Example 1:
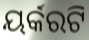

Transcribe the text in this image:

ୟର୍କରଟି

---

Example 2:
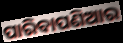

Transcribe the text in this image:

ପାରିବାପଣିଆର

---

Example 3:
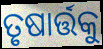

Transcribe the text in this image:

ତୃଷାର୍ତ୍ତକୁ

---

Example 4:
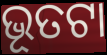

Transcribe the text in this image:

ଭୂତଟା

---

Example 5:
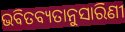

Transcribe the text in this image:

ଭବିତବ୍ୟତାନୁସାରିଣୀ